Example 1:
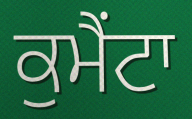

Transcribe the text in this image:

ਕੁਮੈਂਟਾ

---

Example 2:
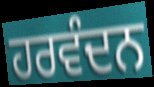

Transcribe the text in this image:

ਹਰਵੰਦਨ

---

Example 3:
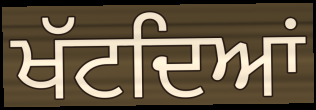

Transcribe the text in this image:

ਖੱਟਦਿਆਂ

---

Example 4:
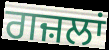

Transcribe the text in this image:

ਗਜ਼ਲਾਂ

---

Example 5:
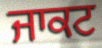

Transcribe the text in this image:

ਜਾਕਟ